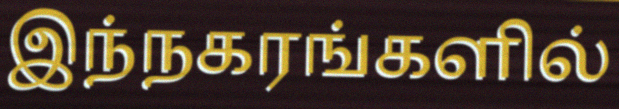
இந்நகரங்களில்